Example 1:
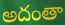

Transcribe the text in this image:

అదంతా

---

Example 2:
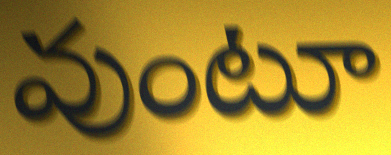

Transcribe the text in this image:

వుంటూ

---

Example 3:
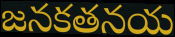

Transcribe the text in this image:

జనకతనయ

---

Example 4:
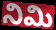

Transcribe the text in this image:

నిమి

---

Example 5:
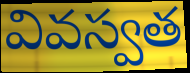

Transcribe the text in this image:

వివస్వత